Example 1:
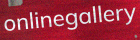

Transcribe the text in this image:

onlinegallery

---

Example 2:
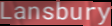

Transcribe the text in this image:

Lansbury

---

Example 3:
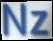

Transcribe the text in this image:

Nz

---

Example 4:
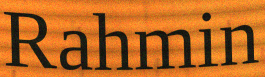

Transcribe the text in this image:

Rahmin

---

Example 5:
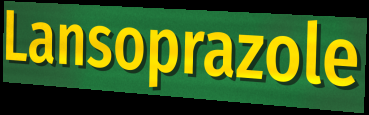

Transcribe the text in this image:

Lansoprazole